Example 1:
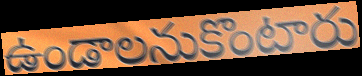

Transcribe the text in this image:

ఉండాలనుకొంటారు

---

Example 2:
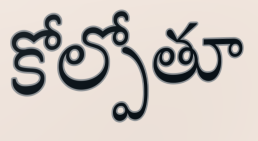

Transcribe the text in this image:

కోల్పోతూ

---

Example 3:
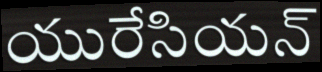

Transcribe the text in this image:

యురేసియన్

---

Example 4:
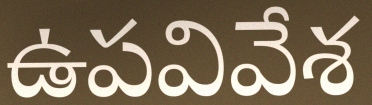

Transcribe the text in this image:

ఉపవివేశ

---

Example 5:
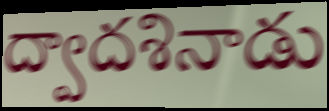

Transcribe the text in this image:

ద్వాదశినాడు